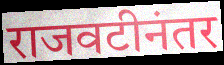
राजवटीनंतर